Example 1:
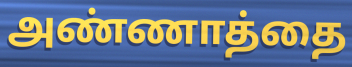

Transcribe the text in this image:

அண்ணாத்தை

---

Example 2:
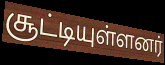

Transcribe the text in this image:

சூட்டியுள்ளனர்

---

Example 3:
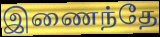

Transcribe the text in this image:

இணைந்தே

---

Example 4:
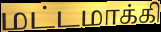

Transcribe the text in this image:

மட்டமாக்கி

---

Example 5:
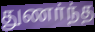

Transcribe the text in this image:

துணர்ந்த